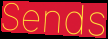
Sends